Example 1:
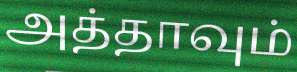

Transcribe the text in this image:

அத்தாவும்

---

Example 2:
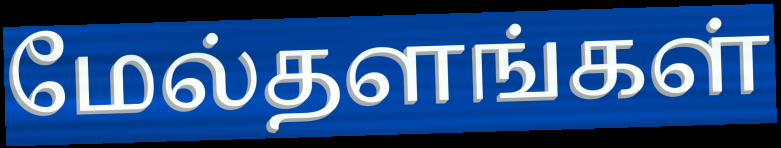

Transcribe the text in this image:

மேல்தளங்கள்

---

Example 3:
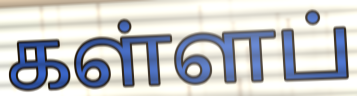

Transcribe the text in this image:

கள்ளப்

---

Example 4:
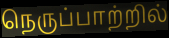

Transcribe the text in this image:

நெருப்பாற்றில்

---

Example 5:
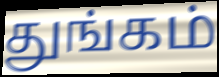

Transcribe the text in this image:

துங்கம்